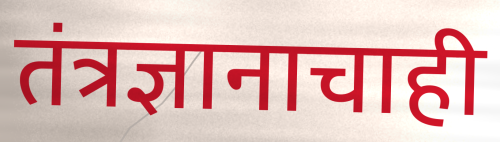
तंत्रज्ञानाचाही